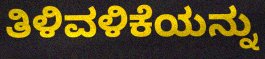
ತಿಳಿವಳಿಕೆಯನ್ನು